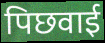
पिछवाई